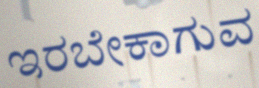
ಇರಬೇಕಾಗುವ